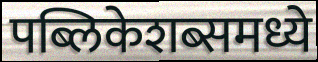
पब्लिकेशब्समध्ये